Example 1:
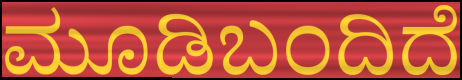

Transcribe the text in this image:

ಮೂಡಿಬಂದಿದೆ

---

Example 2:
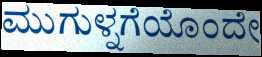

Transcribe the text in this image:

ಮುಗುಳ್ನಗೆಯೊಂದೇ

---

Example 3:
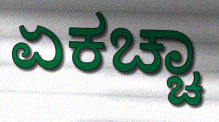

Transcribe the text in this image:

ಏಕಚ್ಚಾ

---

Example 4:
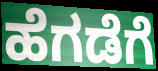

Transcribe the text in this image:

ಹೆಗಡೆಗೆ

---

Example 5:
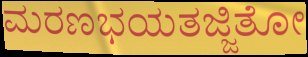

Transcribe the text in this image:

ಮರಣಭಯತಜ್ಜಿತೋ